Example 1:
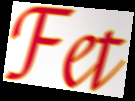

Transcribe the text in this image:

Fet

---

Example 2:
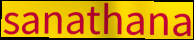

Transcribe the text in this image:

sanathana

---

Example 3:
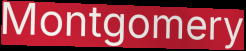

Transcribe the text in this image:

Montgomery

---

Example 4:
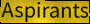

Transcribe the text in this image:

Aspirants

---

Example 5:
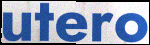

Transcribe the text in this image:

utero